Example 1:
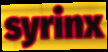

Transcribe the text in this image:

syrinx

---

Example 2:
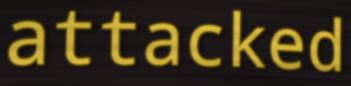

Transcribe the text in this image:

attacked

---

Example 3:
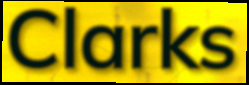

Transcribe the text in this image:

Clarks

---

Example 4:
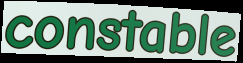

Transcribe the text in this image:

constable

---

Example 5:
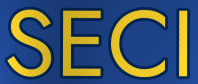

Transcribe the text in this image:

SECI